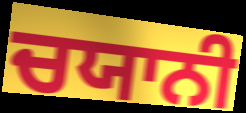
ਚਯਾਨੀ